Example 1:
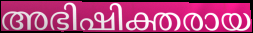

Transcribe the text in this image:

അഭിഷിക്തരായ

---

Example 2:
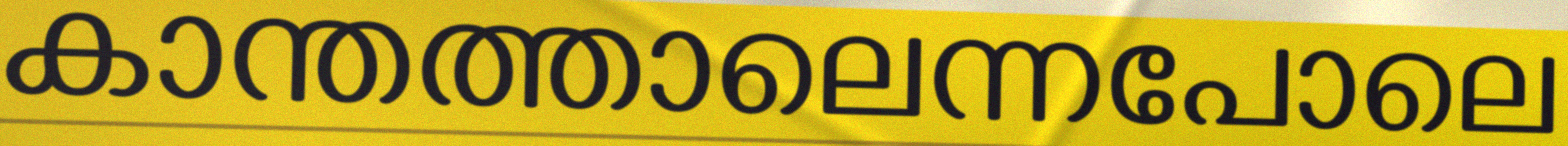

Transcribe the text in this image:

കാന്തത്താലെന്നപോലെ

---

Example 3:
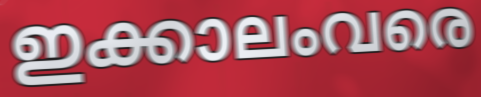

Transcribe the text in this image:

ഇക്കാലംവരെ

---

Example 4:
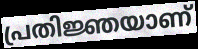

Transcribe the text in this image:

പ്രതിജ്ഞയാണ്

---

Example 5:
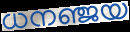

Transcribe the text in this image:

ധനഞ്ജയ